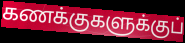
கணக்குகளுக்குப்